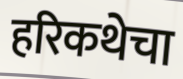
हरिकथेचा